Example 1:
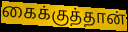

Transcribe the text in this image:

கைக்குத்தான்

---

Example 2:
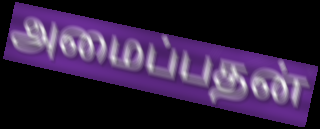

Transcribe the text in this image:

அமைப்பதன்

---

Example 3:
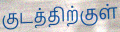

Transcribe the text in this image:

குடத்திற்குள்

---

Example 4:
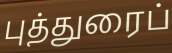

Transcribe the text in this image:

புத்துரைப்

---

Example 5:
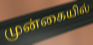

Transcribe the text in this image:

முன்கையில்